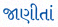
જાણીતાં